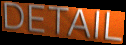
DETAIL